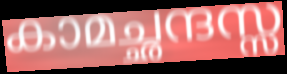
കാമച്ഛന്ദസ്സ